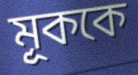
মূককে